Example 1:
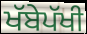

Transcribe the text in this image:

ਖੱਬੇਪੱਖੀ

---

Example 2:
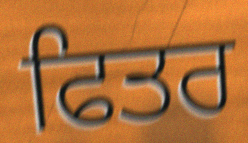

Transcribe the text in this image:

ਫਿਤਰ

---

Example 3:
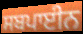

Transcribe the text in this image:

ਸਬਪਾਈਨ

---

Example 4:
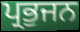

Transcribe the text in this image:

ਪ੍ਰਭੁਜਨ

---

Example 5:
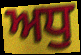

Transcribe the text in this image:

ਅਧੁ